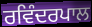
ਰਵਿੰਦਰਪਾਲ